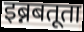
इब्नबतूता